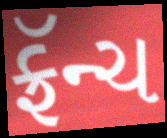
ફ્રૅન્ચ